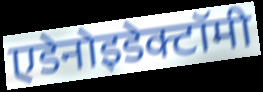
एडेनोइडेक्टॉमी